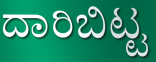
ದಾರಿಬಿಟ್ಟ